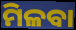
ମିଳବା